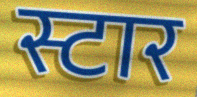
स्‍टार